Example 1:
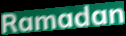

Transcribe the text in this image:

Ramadan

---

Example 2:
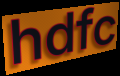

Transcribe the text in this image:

hdfc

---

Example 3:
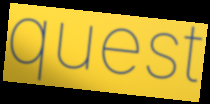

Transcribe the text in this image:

quest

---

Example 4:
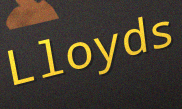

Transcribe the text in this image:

Lloyds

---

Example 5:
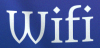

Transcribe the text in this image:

Wifi